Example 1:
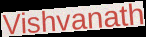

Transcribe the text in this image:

Vishvanath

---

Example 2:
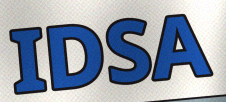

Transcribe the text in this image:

IDSA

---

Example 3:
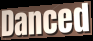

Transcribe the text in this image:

Danced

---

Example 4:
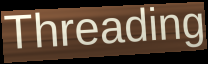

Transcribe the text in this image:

Threading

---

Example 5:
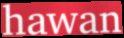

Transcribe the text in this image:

hawan